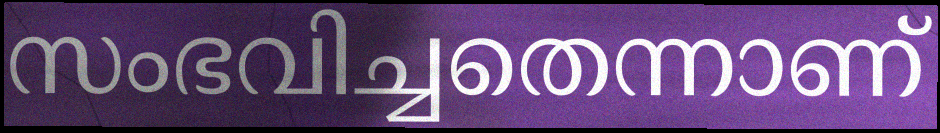
സംഭവിച്ചതെന്നാണ്